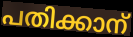
പതിക്കാന്